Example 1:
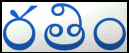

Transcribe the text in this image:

రతిం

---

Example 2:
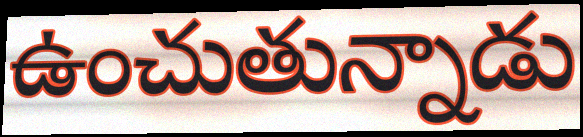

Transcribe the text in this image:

ఉంచుతున్నాడు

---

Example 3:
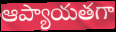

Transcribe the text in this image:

ఆప్యాయతగా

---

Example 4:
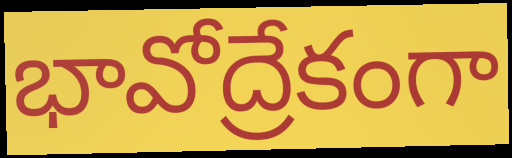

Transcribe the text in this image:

భావోద్రేకంగా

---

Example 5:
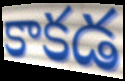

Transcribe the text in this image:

కాకడ